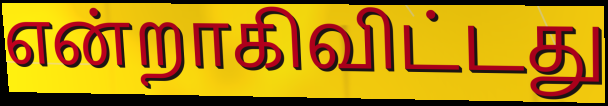
என்றாகிவிட்டது